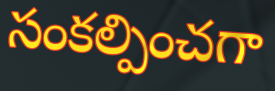
సంకల్పించగా